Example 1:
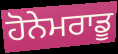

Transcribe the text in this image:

ਹੋਨੇਮਰਾਡੂ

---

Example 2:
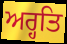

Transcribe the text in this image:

ਅਰ੍ਹਤਿ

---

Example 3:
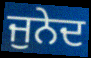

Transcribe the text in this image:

ਜੁਨੇਦ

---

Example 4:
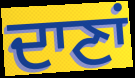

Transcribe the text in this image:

ਦਾਣਾਂ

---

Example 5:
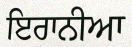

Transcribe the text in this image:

ਇਰਾਨੀਆ